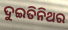
ଦୁଇତିନିଥର